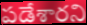
పడేశారని